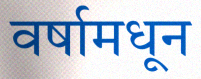
वर्षामधून